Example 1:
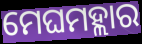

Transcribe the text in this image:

ମେଘମହ୍ଲାର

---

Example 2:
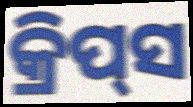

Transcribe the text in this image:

କ୍ରିପ୍‍ସ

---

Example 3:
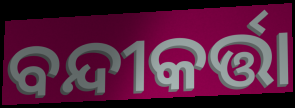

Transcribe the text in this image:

ବନ୍ଦୀକର୍ତ୍ତା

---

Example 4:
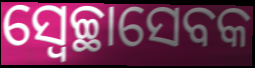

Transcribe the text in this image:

ସ୍ୱେଚ୍ଛାସେବକ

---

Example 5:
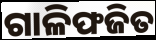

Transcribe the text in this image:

ଗାଳିଫଜିତ